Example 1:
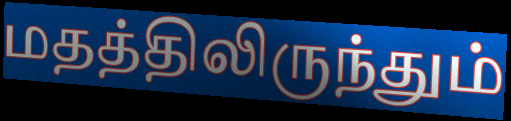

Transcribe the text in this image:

மதத்திலிருந்தும்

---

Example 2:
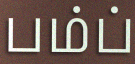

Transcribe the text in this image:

பம்ப்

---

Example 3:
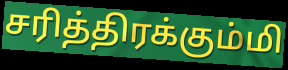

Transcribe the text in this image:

சரித்திரக்கும்மி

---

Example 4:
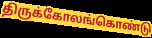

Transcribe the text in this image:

திருக்கோலங்கொண்டு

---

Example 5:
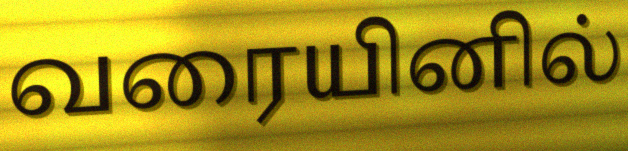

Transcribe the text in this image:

வரையினில்